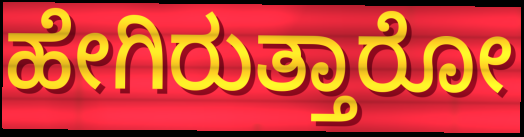
ಹೇಗಿರುತ್ತಾರೋ